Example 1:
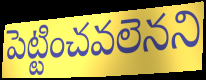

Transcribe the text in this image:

పెట్టించవలెనని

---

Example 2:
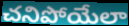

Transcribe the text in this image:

చనిపోయేలా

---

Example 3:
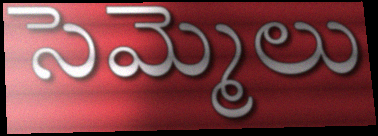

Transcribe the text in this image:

సెమ్మెలు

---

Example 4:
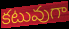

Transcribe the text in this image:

కటువుగా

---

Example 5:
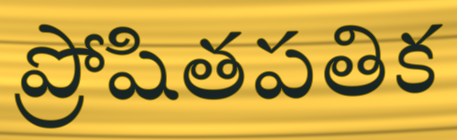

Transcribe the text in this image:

ప్రోషితపతిక